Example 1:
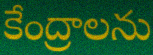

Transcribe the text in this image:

కేంద్రాలను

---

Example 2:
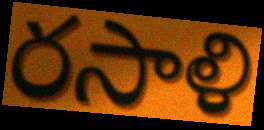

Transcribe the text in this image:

రసాళి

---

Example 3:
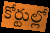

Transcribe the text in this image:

కోర్టుల్లో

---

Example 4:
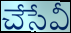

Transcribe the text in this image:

చేసేవీ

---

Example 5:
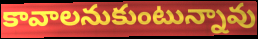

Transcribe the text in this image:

కావాలనుకుంటున్నావు